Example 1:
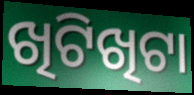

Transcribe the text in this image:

ଖିଟିଖିଟା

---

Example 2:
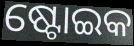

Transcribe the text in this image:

ଷ୍ଟୋଇକ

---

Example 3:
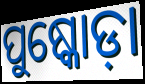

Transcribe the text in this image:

ପୁଷ୍କୋଡ଼ା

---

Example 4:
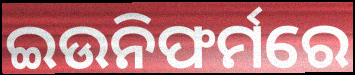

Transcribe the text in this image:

ଇଉନିଫର୍ମରେ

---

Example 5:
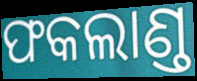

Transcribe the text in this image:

ଫକଲାଣ୍ଡ